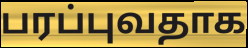
பரப்புவதாக